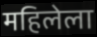
महिलेला